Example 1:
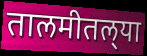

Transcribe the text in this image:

तालमीतल्या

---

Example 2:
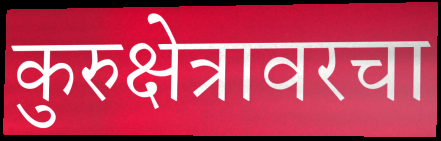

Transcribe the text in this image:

कुरुक्षेत्रावरचा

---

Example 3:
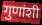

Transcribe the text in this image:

गुणांशी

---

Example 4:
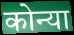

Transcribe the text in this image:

कोन्या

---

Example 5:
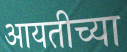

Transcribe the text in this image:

आयतीच्या